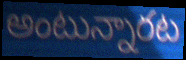
అంటున్నారట